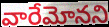
వారేమోనని